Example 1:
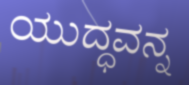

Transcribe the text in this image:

ಯುದ್ಧವನ್ನ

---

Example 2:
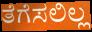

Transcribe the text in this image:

ತೆಗೆಸಲಿಲ್ಲ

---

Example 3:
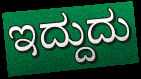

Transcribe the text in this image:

ಇದ್ದುದು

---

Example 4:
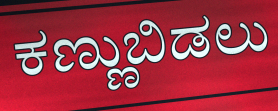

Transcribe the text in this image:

ಕಣ್ಣುಬಿಡಲು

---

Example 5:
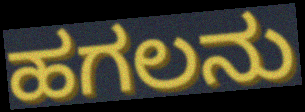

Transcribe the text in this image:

ಹಗಲನು